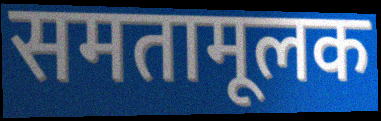
समतामूलक